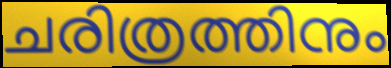
ചരിത്രത്തിനും